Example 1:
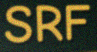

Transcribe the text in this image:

SRF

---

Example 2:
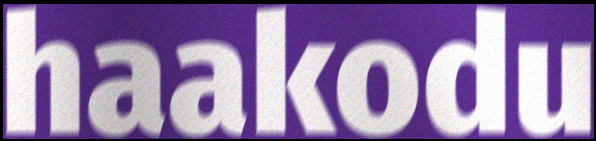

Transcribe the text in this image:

haakodu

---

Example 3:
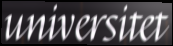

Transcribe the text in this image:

universitet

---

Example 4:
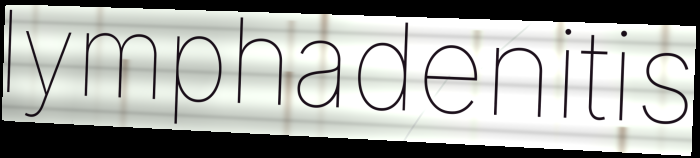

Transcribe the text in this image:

lymphadenitis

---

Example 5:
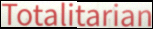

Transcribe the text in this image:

Totalitarian